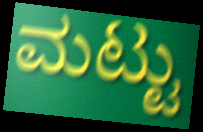
ಮಟ್ಟು